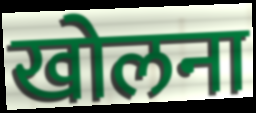
खोलना